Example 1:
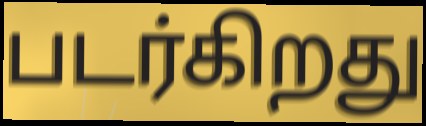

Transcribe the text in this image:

படர்கிறது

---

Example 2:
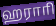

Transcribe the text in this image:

ஹராரி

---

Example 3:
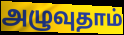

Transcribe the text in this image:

அழுவுதாம்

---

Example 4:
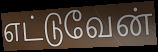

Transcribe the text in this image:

எட்டுவேன்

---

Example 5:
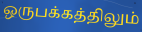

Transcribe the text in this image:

ஒருபக்கத்திலும்